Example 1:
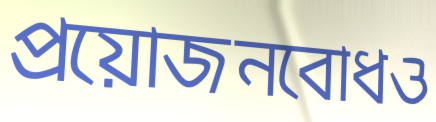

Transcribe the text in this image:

প্রয়োজনবোধও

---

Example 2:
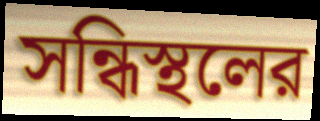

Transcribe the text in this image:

সন্ধিস্থলের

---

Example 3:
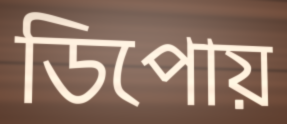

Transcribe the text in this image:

ডিপোয়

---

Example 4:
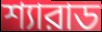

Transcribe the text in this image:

শ্যারাড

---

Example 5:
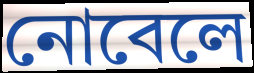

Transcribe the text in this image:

নোবেলে